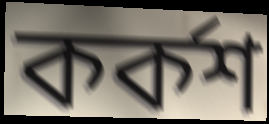
কর্কশ